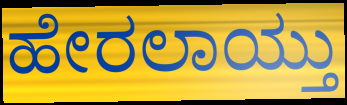
ಹೇರಲಾಯ್ತು